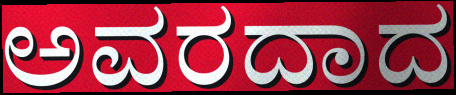
ಅವರದಾದ